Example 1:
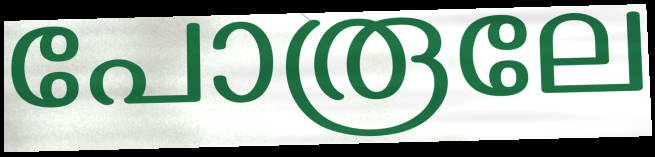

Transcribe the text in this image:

പോരൂലേ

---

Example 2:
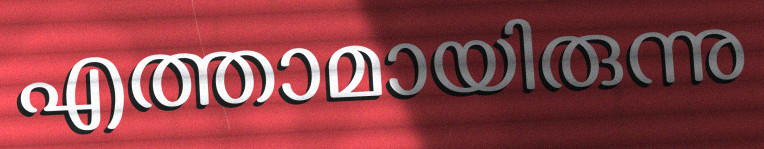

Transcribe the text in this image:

എത്താമായിരുന്നു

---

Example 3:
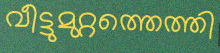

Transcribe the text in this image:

വീട്ടുമുറ്റത്തെത്തി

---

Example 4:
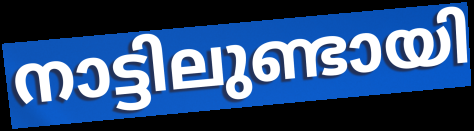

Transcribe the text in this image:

നാട്ടിലുണ്ടായി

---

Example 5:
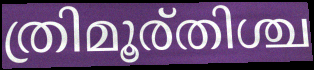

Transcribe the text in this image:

ത്രിമൂര്തിശ്ച